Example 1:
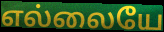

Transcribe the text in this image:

எல்லையே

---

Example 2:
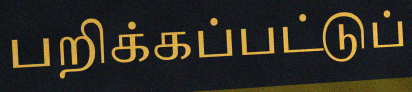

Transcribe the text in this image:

பறிக்கப்பட்டுப்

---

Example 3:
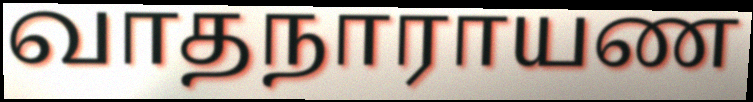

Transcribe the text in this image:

வாதநாராயண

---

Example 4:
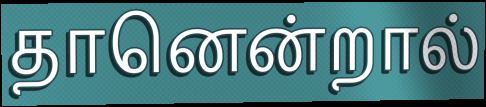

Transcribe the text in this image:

தானென்றால்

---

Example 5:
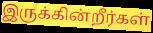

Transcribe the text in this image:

இருக்கின்றீர்கள்